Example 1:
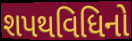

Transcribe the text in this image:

શપથવિધિનો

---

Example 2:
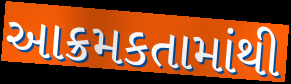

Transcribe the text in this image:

આક્રમકતામાંથી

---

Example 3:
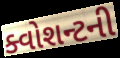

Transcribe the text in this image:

ક્વોશન્ટની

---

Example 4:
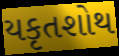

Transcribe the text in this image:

યકૃતશોથ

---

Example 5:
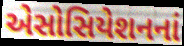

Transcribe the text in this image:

એસોસિયેશનનાં